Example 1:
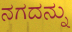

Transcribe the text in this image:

ನಗದನ್ನು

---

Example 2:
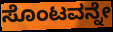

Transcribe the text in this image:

ಸೊಂಟವನ್ನೇ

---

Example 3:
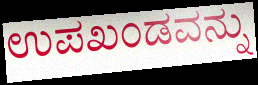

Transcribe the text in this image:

ಉಪಖಂಡವನ್ನು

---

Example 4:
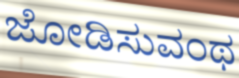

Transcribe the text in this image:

ಜೋಡಿಸುವಂಥ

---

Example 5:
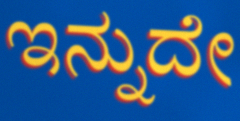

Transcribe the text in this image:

ಇನ್ನುದೇ